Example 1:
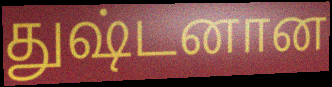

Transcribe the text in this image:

துஷ்டனான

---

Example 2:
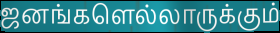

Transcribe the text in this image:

ஜனங்களெல்லாருக்கும்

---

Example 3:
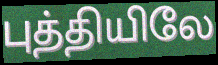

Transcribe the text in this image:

புத்தியிலே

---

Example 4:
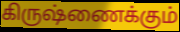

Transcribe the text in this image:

கிருஷ்ணைக்கும்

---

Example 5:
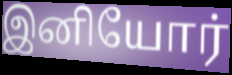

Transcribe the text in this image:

இனியோர்